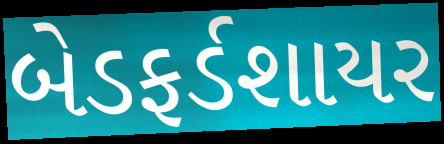
બેડફર્ડશાયર